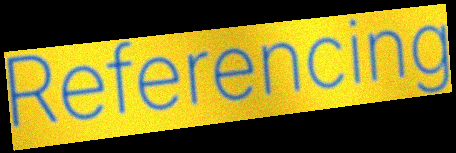
Referencing